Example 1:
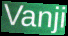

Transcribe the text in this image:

Vanji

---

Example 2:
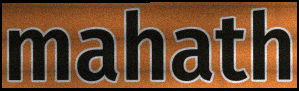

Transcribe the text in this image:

mahath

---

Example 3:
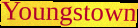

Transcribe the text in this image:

Youngstown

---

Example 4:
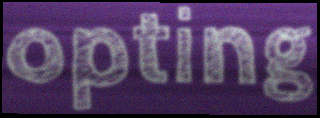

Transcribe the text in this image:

opting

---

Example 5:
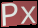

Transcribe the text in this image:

Px